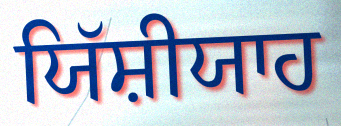
ਯਿੱਸ਼ੀਯਾਹ